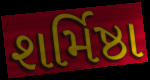
શર્મિષ્ઠા